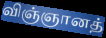
விஞ்ஞானத்